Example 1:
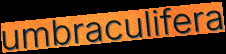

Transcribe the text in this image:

umbraculifera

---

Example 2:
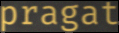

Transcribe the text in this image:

pragat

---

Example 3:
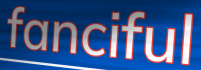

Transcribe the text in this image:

fanciful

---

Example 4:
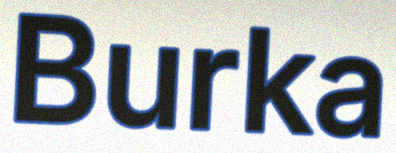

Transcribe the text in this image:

Burka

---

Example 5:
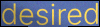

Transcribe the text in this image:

desired